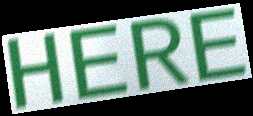
HERE